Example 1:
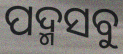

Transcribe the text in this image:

ପଦ୍ମସବୁ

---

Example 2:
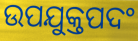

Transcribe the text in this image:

ଉପଯୁକ୍ତପଦଂ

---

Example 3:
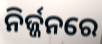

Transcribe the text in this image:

ନିର୍ଜ୍ଜନରେ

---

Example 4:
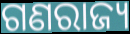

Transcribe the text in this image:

ଗଣରାଜ୍ୟ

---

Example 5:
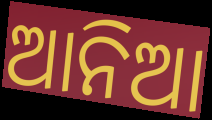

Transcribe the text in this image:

ଆନିଆ